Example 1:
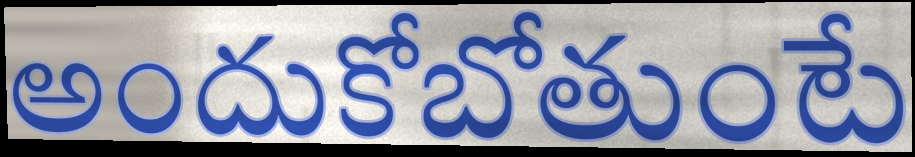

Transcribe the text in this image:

అందుకోబోతుంటే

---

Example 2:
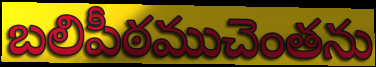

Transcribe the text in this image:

బలిపీఠముచెంతను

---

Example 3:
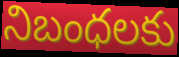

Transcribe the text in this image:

నిబంధలకు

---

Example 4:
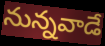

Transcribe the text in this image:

నున్నవాడే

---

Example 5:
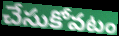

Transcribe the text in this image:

చేసుకోవటం